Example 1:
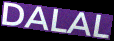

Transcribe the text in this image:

DALAL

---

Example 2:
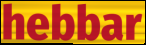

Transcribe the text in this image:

hebbar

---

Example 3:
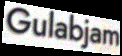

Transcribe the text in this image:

Gulabjam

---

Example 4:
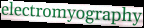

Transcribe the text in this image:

electromyography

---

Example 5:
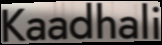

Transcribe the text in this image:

Kaadhali